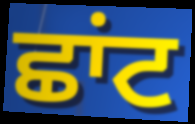
ਛਾਂਟ